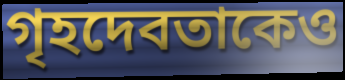
গৃহদেবতাকেও